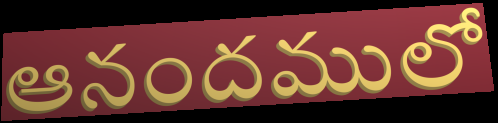
ఆనందములో